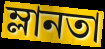
ম্লানতা